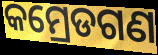
କମ୍ରେଡଗଣ